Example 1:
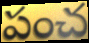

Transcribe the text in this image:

పంచ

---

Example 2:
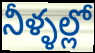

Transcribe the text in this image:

నీళ్ళల్లో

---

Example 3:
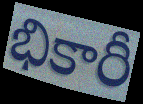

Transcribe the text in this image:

భికారీ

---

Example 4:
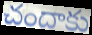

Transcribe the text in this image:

చందాకు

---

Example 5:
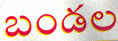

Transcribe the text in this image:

బండల